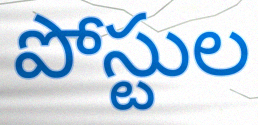
పోస్టుల